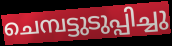
ചെമ്പട്ടുടുപ്പിച്ചു